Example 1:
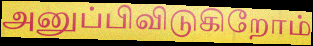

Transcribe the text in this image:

அனுப்பிவிடுகிறோம்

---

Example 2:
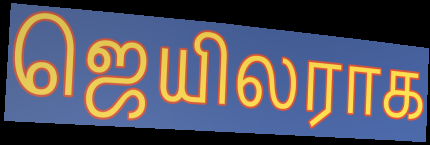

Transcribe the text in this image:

ஜெயிலராக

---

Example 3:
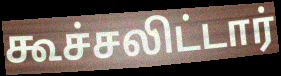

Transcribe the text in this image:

கூச்சலிட்டார்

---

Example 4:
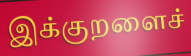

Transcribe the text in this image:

இக்குறளைச்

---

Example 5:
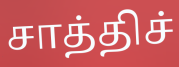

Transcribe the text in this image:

சாத்திச்